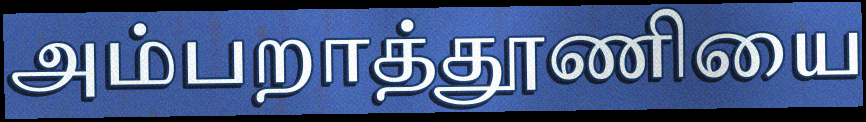
அம்பறாத்தூணியை